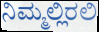
ನಿಮ್ಮಲ್ಲಿರಲಿ